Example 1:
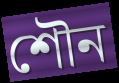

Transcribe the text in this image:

শৌন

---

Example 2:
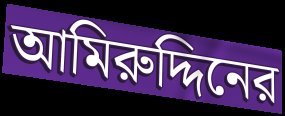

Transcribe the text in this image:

আমিরুদ্দিনের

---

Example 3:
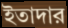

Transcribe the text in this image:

ইতাদার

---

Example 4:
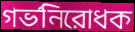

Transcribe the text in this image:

গর্ভনিরোধক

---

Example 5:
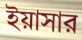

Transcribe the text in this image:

ইয়াসার